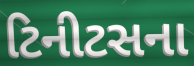
ટિનીટસના